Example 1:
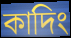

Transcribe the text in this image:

কাদিং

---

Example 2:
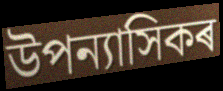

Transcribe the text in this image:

উপন্যাসিকৰ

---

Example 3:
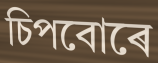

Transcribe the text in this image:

চিপবোৰে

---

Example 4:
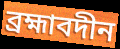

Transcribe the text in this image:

ব্ৰহ্মাবদীন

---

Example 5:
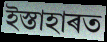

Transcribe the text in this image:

ইস্তাহাৰত